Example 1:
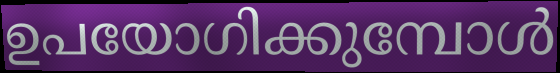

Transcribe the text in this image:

ഉപയോഗിക്കുമ്പോൾ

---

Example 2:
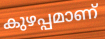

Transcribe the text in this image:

കുഴപ്പമാണ്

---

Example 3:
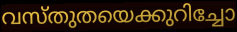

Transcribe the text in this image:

വസ്തുതയെക്കുറിച്ചോ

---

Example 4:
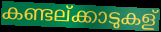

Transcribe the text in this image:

കണ്ടല്ക്കാടുകള്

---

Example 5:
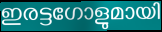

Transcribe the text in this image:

ഇരട്ടഗോളുമായി